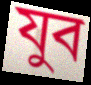
যুব